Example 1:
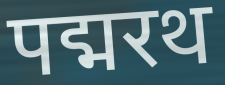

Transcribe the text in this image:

पद्मरथ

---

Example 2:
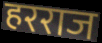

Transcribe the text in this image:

हरराज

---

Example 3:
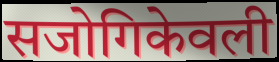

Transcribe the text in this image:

सजोगिकेवली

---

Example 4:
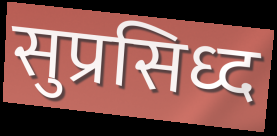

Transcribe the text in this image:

सुप्रसिध्द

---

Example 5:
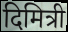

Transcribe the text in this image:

दिमित्री